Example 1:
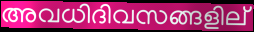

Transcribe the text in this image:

അവധിദിവസങ്ങളില്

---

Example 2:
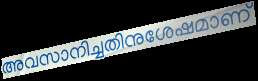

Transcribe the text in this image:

അവസാനിച്ചതിനുശേഷമാണ്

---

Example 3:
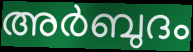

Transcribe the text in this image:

അർബുദം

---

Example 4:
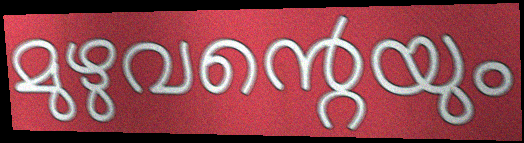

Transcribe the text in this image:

മുഴുവന്റെയും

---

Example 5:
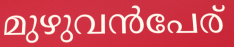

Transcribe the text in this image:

മുഴുവൻപേര്